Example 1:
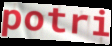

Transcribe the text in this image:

potri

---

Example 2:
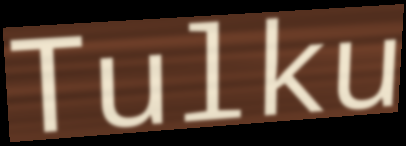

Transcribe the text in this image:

Tulku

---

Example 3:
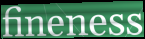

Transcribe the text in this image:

fineness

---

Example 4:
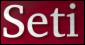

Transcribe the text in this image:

Seti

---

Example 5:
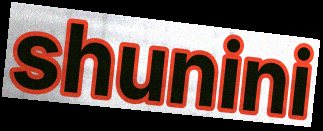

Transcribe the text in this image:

shunini